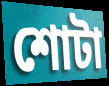
শোটা